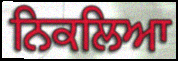
ਨਿਕਲਿਆ